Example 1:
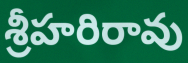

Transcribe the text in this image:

శ్రీహరిరావు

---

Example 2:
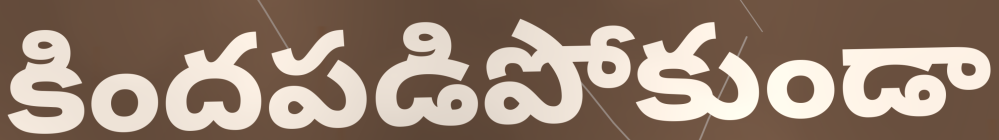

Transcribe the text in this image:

కిందపడిపోకుండా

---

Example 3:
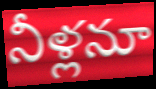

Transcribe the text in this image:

నీళ్లనూ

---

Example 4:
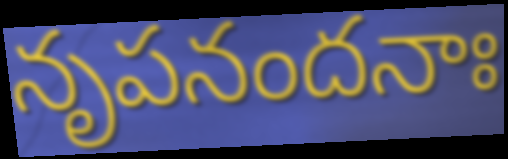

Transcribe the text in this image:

నృపనందనాః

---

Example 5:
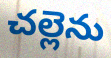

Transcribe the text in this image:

చల్లెను